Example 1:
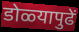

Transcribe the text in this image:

डोळ्यापुढें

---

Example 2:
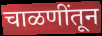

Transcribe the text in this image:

चाळणींतून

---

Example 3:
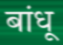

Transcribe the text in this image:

बांधू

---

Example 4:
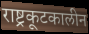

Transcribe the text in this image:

राष्ट्रकूटकालीन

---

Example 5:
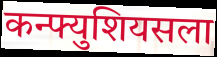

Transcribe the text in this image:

कन्फ्युशियसला